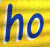
ho